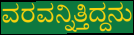
ವರವನ್ನಿತ್ತಿದ್ದನು